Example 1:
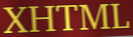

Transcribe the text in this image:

XHTML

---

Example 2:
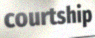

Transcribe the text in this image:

courtship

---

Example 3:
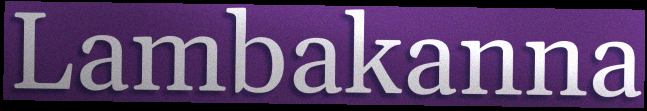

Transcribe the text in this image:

Lambakanna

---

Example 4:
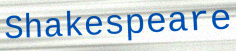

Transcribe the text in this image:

Shakespeare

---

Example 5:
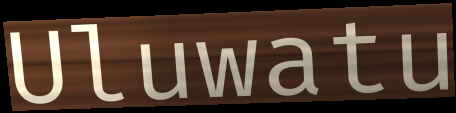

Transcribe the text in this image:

Uluwatu